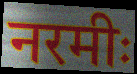
नरमीः